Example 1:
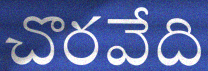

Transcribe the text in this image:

చొరవేది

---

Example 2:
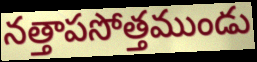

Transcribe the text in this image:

నత్తాపసోత్తముండు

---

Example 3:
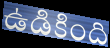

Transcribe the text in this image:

ఉడికింది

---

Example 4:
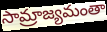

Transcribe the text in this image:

సామ్రాజ్యమంతా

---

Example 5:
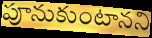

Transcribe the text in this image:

పూనుకుంటానని